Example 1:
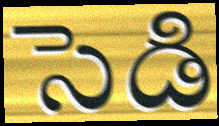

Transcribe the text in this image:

సెడి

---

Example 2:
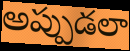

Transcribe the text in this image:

అప్పుడలా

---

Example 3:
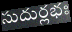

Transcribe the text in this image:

సుదుర్లభః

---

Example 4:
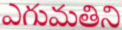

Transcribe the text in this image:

ఎగుమతిని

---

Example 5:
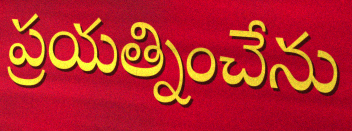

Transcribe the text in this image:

ప్రయత్నించేను